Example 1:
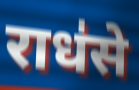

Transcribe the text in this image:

राध॑से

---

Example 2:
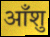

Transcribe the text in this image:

आँशु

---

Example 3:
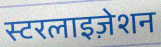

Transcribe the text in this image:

स्टरलाइज़ेशन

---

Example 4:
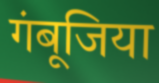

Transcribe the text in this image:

गंबूजिया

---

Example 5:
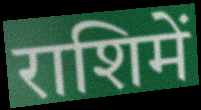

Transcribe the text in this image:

राशिमें